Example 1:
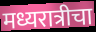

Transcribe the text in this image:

मध्यरात्रीचा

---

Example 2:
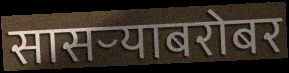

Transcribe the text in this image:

सासऱ्याबरोबर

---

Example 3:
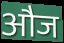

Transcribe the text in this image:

औज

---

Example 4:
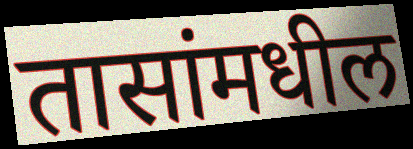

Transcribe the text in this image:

तासांमधील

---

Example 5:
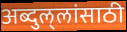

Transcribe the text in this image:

अब्दुल्लांसाठी